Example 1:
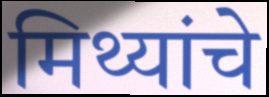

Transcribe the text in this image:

मिथ्यांचे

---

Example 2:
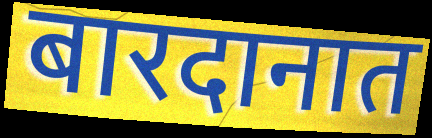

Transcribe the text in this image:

बारदानात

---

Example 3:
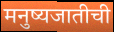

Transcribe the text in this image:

मनुष्यजातीची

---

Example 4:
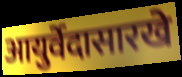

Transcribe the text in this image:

आयुर्वेदासारखे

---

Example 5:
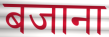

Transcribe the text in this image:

बजाना